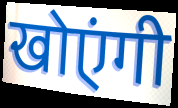
खोएंगी